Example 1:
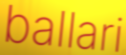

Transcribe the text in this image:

ballari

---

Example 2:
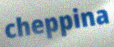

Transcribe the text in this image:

cheppina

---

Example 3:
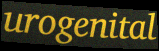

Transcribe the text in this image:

urogenital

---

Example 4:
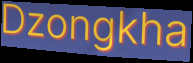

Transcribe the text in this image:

Dzongkha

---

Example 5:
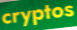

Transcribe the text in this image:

cryptos